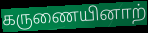
கருணையினாற்